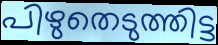
പിഴുതെടുത്തിട്ട